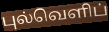
புல்வெளிப்